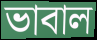
ভাবাল